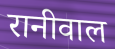
रानीवाल